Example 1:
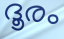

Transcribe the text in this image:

ദൂരം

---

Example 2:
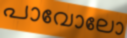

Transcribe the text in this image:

പാവോലോ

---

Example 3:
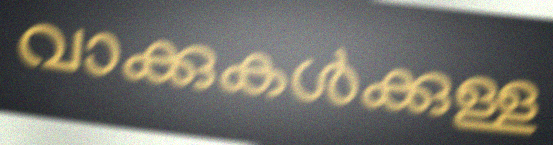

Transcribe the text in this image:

വാക്കുകൾക്കുള്ള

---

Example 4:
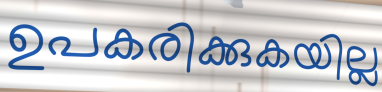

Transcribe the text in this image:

ഉപകരിക്കുകയില്ല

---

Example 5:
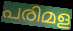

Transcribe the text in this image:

പരിമള